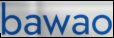
bawao